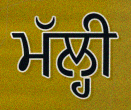
ਮੱਲ੍ਹੀ